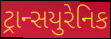
ટ્રાન્સયુરેનિક